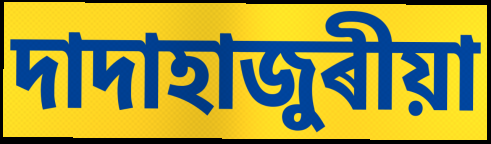
দাদাহাজুৰীয়া